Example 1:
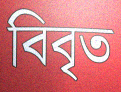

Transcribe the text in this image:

বিবৃত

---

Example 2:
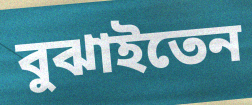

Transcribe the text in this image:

বুঝাইতেন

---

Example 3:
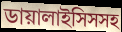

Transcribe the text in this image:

ডায়ালাইসিসসহ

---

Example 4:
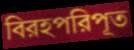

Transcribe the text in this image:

বিরহপরিপূত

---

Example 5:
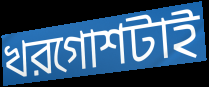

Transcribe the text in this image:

খরগোশটাই